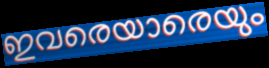
ഇവരെയാരെയും